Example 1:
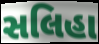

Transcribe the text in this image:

સલિહા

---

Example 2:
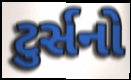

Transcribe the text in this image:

ટુર્સનો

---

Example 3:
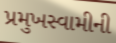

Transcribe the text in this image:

પ્રમુખસ્વામીની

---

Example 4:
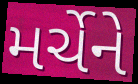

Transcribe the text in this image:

મર્ચેને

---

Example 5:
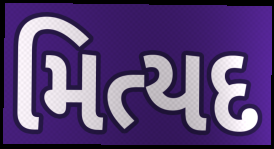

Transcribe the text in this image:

મિત્યદ